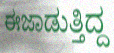
ಈಜಾಡುತ್ತಿದ್ದ